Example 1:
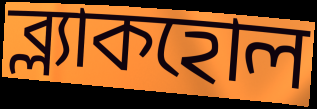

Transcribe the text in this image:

ব্ল্যাকহোল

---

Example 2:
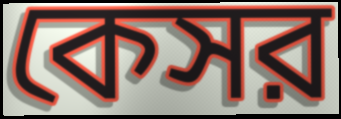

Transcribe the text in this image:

কেসর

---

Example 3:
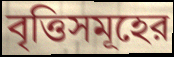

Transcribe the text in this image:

বৃত্তিসমূহের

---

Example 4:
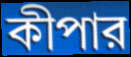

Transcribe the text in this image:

কীপার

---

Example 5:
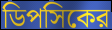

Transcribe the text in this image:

ডিপসিকের